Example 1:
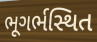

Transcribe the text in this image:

ભૂગર્ભસ્થિત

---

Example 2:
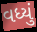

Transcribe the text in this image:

વધ્યું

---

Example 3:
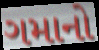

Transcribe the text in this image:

ગમાનો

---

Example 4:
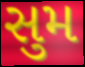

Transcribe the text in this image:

સુમ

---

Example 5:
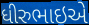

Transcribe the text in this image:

ધીરુભાઇએ